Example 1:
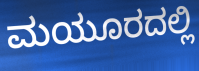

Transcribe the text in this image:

ಮಯೂರದಲ್ಲಿ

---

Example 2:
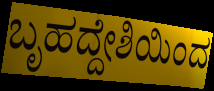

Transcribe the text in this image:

ಬೃಹದ್ದೇಶಿಯಿಂದ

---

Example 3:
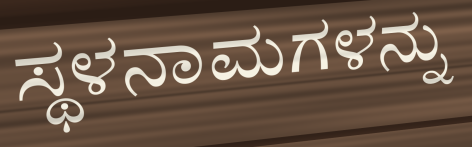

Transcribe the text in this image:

ಸ್ಥಳನಾಮಗಳನ್ನು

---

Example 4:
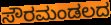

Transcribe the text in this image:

ಸೌರಮಂಡಲದ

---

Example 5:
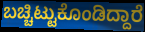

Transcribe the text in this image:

ಬಚ್ಚಿಟ್ಟುಕೊಂಡಿದ್ದಾರೆ